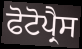
ਫੋਟੋਪ੍ਰੈਸ